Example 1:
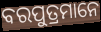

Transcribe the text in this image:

ବରପୁତ୍ରମାନେ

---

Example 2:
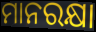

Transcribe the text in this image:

ମାନରକ୍ଷା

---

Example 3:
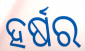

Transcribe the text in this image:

ହର୍ଷର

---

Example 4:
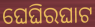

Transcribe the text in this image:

ଘେଘିରଘାଟ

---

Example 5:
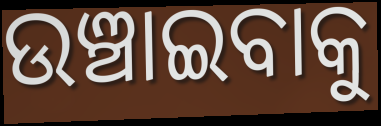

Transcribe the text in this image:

ଉଞ୍ଚାଇବାକୁ